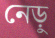
নেড়ু